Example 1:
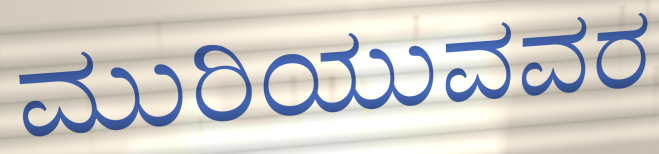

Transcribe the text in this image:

ಮುರಿಯುವವರ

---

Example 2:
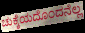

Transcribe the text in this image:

ಚುಕ್ಕೆಯದೊಂದನೆಲ್ಲ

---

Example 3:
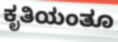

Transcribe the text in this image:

ಕೃತಿಯಂತೂ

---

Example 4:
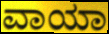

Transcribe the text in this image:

ವಾಯಾ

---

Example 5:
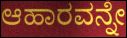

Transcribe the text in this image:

ಆಹಾರವನ್ನೇ